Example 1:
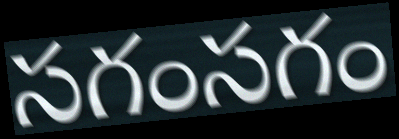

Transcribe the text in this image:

సగంసగం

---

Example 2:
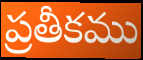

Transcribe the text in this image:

ప్రతీకము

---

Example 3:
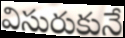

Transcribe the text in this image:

విసురుకునే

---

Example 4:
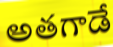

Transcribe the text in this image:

అతగాడే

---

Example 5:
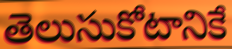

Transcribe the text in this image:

తెలుసుకోటానికే